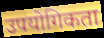
उपयोगिकता